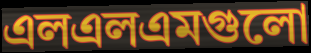
এলএলএমগুলো